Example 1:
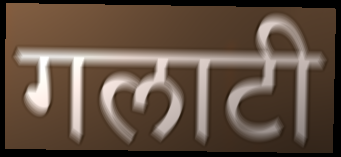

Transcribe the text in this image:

गलाटी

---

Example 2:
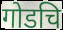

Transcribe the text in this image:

गोडचि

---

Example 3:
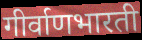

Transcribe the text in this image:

गीर्वाणभारती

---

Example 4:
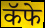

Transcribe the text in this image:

कॅफे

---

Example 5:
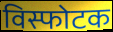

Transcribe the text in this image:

विस्फोटक